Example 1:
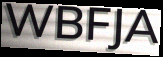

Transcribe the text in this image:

WBFJA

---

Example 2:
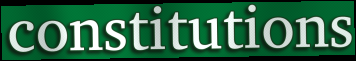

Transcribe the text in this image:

constitutions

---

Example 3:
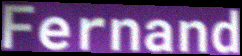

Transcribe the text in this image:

Fernand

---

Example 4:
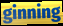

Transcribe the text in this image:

ginning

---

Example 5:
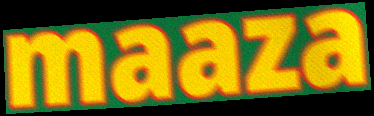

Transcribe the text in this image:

maaza